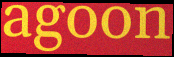
agoon